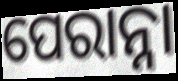
ପେରାନ୍ନା